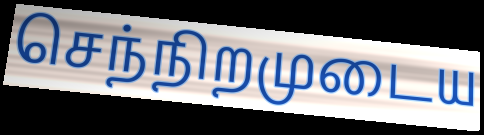
செந்நிறமுடைய